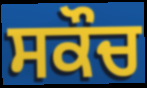
ਸਕੌਚ